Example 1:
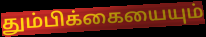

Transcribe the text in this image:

தும்பிக்கையையும்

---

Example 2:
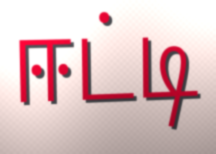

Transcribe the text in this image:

ஈட்டி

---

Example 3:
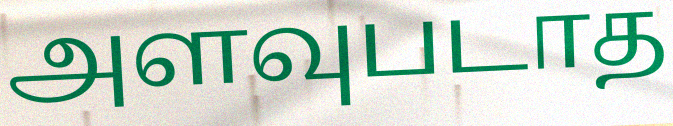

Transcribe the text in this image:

அளவுபடாத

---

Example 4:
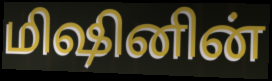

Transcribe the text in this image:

மிஷினின்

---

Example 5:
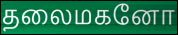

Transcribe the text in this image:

தலைமகனோ